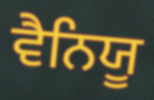
ਵੈਨਿਯੂ